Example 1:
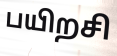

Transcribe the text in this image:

பயிறசி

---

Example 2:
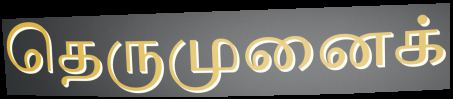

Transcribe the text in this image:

தெருமுனைக்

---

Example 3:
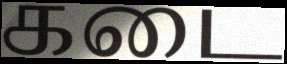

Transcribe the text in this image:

கடை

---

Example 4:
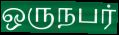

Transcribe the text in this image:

ஒருநபர்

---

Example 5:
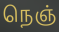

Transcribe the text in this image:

நெஞ்